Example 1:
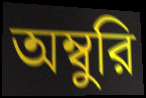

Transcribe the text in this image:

অম্বুরি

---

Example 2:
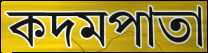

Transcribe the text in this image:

কদমপাতা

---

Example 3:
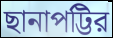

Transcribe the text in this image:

ছানাপট্টির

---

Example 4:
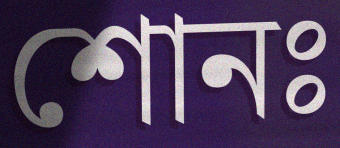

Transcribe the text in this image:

শোনঃ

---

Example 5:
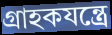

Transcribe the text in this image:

গ্রাহকযন্ত্রে